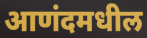
आणंदमधील